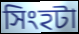
সিংহটা